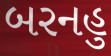
બરનહુ